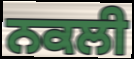
ਨਕਲੀ